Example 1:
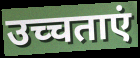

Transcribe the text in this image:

उच्चताएं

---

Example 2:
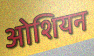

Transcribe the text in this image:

ओशियन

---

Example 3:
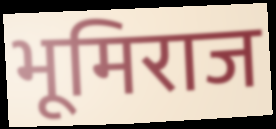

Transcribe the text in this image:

भूमिराज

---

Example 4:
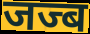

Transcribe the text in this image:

जज्ब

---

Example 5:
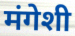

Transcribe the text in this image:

मंगेशी